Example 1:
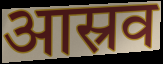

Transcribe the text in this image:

आस्रव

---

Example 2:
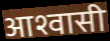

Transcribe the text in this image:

आश्वासी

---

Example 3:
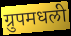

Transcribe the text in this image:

ग्रुपमधली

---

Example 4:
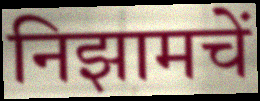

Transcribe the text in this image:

निझामचें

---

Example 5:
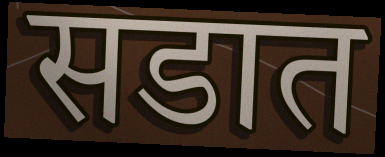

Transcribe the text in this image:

सडात